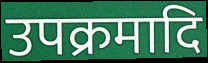
उपक्रमादि